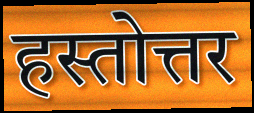
हस्तोत्तर